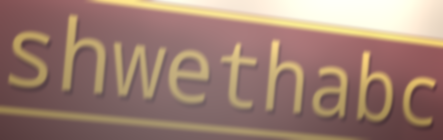
shwethabc